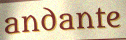
andante